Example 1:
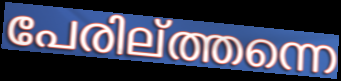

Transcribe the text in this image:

പേരില്ത്തന്നെ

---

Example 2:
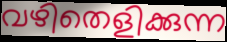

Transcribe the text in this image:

വഴിതെളിക്കുന്ന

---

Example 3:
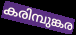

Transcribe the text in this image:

കരിമ്പുങ്കര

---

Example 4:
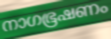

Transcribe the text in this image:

നാഗഭൂഷണം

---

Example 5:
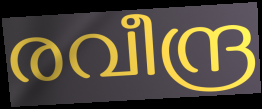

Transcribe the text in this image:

രവീന്ദ്ര